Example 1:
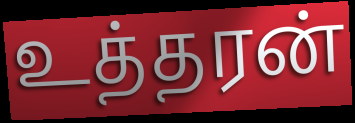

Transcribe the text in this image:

உத்தரன்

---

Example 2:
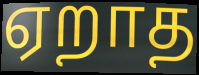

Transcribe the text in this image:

ஏறாத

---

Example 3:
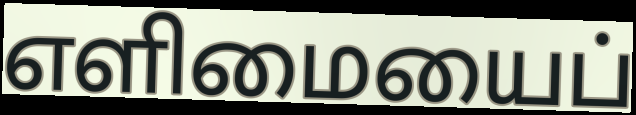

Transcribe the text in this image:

எளிமையைப்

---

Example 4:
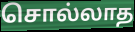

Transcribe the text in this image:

சொல்லாத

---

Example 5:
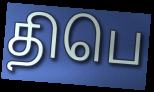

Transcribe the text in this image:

திபெ